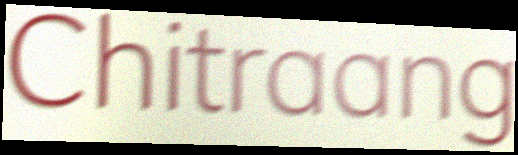
Chitraang